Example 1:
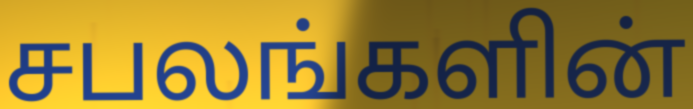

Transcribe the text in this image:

சபலங்களின்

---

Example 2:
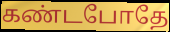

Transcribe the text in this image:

கண்டபோதே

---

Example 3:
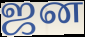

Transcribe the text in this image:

ஜன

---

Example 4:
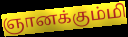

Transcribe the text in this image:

ஞானக்கும்மி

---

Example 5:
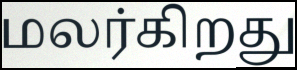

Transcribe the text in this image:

மலர்கிறது